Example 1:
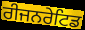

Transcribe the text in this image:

ਰੀਜਨਰੇਟਿਡ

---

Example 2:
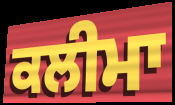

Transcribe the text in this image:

ਕਲੀਮਾ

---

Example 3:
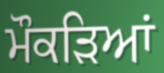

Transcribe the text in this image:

ਮੌਕੜਿਆਂ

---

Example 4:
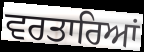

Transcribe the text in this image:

ਵਰਤਾਰਿਆਂ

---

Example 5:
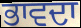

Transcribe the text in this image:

ਭਾਵਦਾ